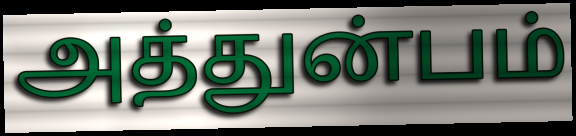
அத்துன்பம்